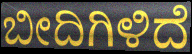
ಬೀದಿಗಿಳಿದೆ